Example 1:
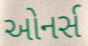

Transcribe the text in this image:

ઓનર્સ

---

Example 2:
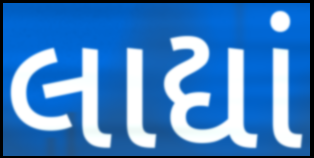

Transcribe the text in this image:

લાદ્યાં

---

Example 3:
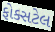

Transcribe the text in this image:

ફોક્સટેલ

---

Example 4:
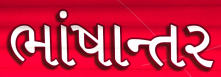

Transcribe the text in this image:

ભાંષાન્તર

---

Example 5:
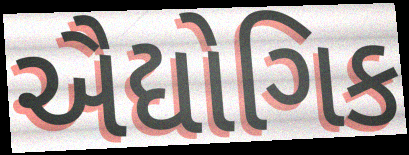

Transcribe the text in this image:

ઐદ્યોગિક